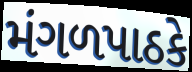
મંગળપાઠકે